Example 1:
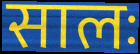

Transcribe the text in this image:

सालः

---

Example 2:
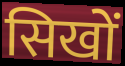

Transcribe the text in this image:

सिखों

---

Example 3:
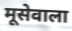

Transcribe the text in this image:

मूसेवाला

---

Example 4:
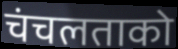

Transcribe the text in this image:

चंचलताको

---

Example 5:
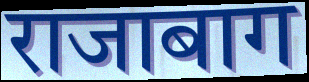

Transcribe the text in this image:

राजाबाग